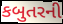
કબુતરની